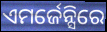
ଏମର୍ଜେନ୍ସିରେ